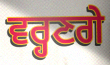
ਵਰ੍ਹਣਗੇ